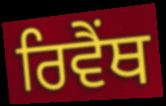
ਰਿਵੈਂਥ